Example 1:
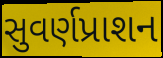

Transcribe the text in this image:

સુવર્ણપ્રાશન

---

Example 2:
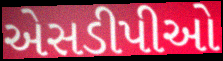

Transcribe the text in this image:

એસડીપીઓ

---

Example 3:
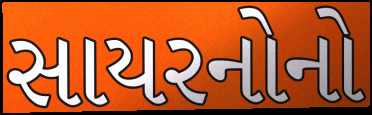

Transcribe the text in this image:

સાયરનોનો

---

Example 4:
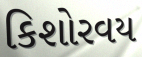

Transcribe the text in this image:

કિશોરવય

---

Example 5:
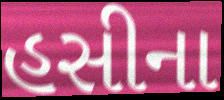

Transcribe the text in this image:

હસીના